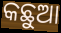
କଛୁଆ